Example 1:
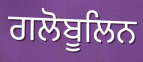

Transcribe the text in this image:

ਗਲੋਬੂਲਿਨ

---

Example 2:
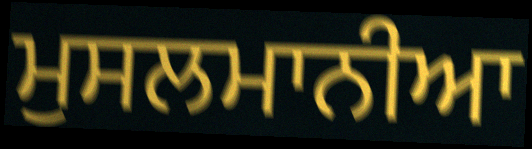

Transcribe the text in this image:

ਮੁਸਲਮਾਨੀਆ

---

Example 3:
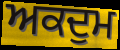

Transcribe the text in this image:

ਅਕਦੁਮ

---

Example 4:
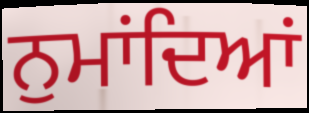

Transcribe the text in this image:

ਨੁਮਾਂਦਿਆਂ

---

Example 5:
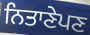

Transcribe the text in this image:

ਨਿਤਾਣੇਪਣ